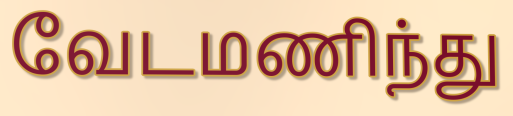
வேடமணிந்து